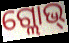
ଗ୍ଲୋଭ୍